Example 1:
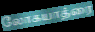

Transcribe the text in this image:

லோகயாத்ரை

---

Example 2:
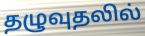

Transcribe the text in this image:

தழுவுதலில்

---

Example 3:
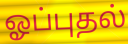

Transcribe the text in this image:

ஓப்புதல்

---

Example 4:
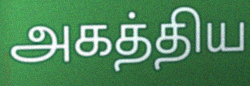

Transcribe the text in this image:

அகத்திய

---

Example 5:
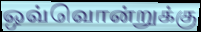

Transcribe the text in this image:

ஒவ்வொன்றுக்கு